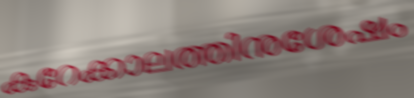
കുറേക്കാലത്തിനുശേഷം